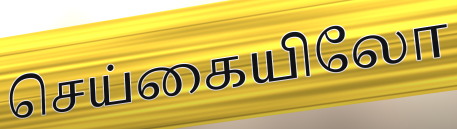
செய்கையிலோ